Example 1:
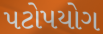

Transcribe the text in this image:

પટોપયોગ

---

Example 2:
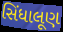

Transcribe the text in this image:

સિંધાલૂણ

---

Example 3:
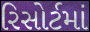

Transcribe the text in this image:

રિસોર્ટમાં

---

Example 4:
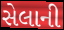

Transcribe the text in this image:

સેલાની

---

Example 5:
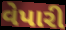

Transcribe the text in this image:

વેપારી